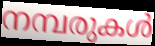
നമ്പരുകൾ